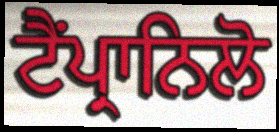
ਟੈਂਪ੍ਰਾਨਿਲੋ